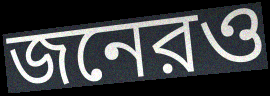
জনেরও